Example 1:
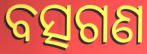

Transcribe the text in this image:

ବତ୍ସଗଣ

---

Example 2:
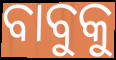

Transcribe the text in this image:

ବାବୁକୁ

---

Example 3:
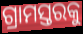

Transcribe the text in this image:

ଗ୍ରାମସ୍ତରକୁ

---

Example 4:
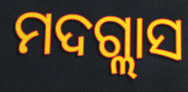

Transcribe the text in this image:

ମଦଗ୍ଲାସ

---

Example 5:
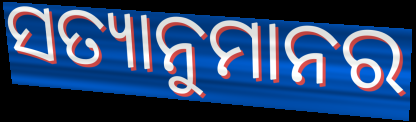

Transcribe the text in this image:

ସତ୍ୟାନୁମାନର